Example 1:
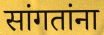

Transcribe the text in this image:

सांगतांना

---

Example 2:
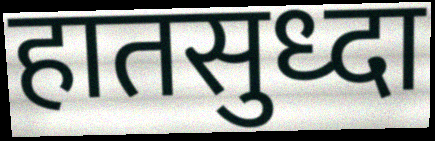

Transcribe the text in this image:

हातसुध्दा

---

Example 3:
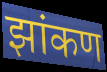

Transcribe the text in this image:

झांकण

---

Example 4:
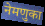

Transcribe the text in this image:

नेमणुका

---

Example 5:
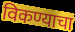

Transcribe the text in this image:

विकण्याचा